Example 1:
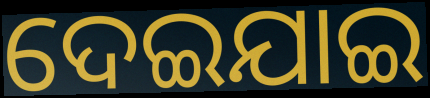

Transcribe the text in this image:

ଦେଇଯାଇ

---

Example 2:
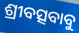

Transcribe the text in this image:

ଶ୍ରୀବତ୍ସବାବୁ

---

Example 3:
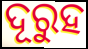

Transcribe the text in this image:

ଦୂରୁହ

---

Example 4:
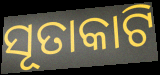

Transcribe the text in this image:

ସୂତାକାଟି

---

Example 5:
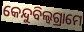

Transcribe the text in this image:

କେନ୍ଦୁବିଲ୍ଵଗ୍ରାମେ